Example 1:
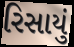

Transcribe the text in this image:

રિસાયું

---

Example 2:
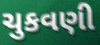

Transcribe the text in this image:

ચુકવણી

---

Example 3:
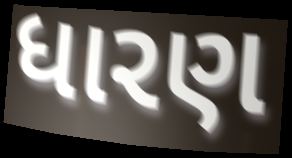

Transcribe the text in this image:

ધારણ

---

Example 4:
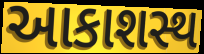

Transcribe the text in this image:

આકાશસ્થ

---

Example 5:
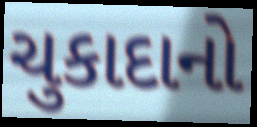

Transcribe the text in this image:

ચુકાદાનો